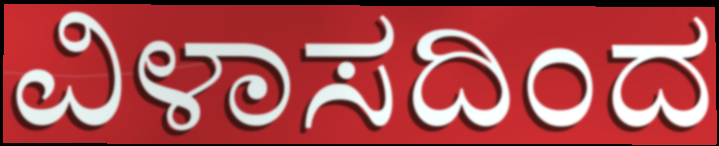
ವಿಳಾಸದಿಂದ